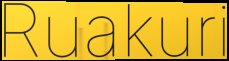
Ruakuri